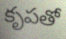
కృపతో